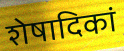
शेषादिकां